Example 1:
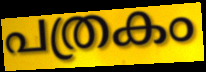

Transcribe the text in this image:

പത്രകം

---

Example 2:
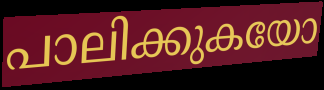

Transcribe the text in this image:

പാലിക്കുകയോ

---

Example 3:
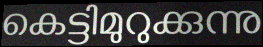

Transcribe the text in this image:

കെട്ടിമുറുക്കുന്നു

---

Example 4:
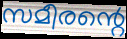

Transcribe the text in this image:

സമീരന്റെ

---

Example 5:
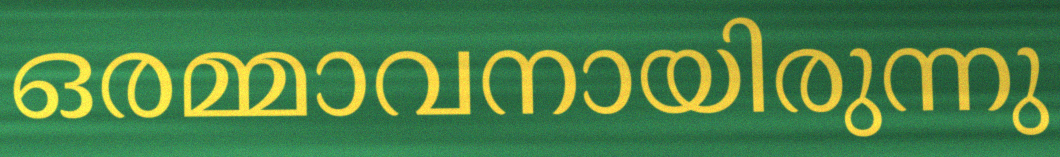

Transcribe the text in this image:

ഒരമ്മാവനായിരുന്നു